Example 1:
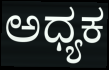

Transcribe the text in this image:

ಅಧ್ಯಕ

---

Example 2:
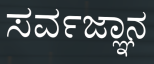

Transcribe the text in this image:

ಸರ್ವಜ್ಞಾನ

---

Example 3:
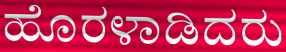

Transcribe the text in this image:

ಹೊರಳಾಡಿದರು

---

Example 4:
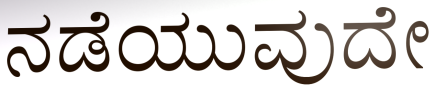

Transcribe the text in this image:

ನಡೆಯುವುದೇ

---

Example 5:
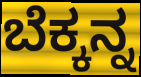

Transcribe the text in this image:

ಬೆಕ್ಕನ್ನ